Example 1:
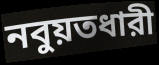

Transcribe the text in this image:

নবুয়তধারী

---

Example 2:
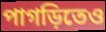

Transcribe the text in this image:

পাগড়িতেও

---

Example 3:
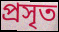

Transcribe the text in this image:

প্রসৃত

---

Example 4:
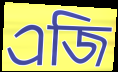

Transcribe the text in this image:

এজি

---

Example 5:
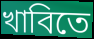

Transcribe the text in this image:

খাবিতে